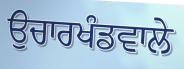
ਉਚਾਰਖੰਡਵਾਲੇ